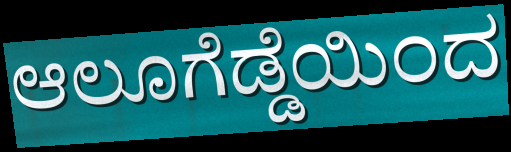
ಆಲೂಗೆಡ್ಡೆಯಿಂದ